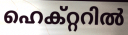
ഹെക്റ്ററിൽ